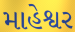
માહેશ્વર